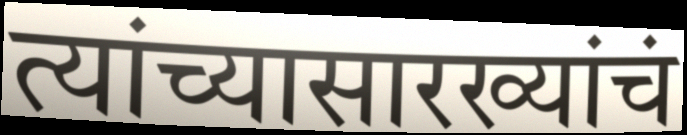
त्यांच्यासारख्यांचं